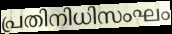
പ്രതിനിധിസംഘം